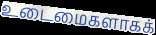
உடைமைகளாகக்